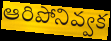
ఆరిపోనివ్వక